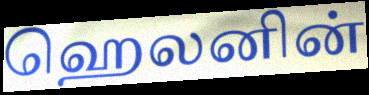
ஹெலனின்